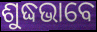
ଶୁଦ୍ଧଭାବେ